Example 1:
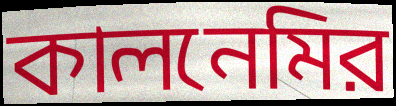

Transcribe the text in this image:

কালনেমির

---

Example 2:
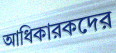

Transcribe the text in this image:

আধিকারকদের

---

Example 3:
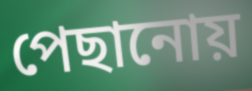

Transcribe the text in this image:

পেছানোয়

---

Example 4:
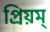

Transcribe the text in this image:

প্রিয়ম্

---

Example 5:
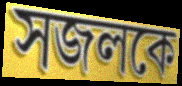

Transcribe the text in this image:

সজলকে